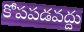
కోపపడవద్దు